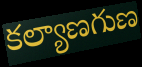
కల్యాణగుణ